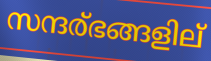
സന്ദര്ഭങ്ങളില്